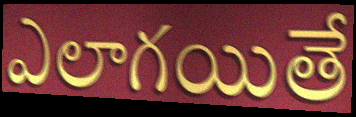
ఎలాగయితే